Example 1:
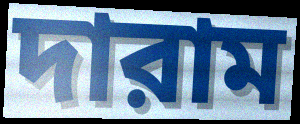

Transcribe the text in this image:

দারাম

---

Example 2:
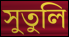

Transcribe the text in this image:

সুতুলি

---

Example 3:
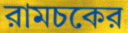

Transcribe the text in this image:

রামচকের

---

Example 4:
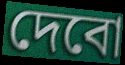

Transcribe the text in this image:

দেবো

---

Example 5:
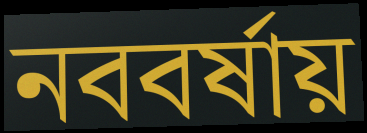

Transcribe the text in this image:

নববর্ষায়